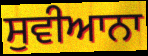
ਸੁਵੀਆਨਾ